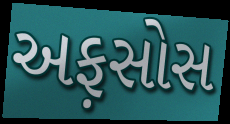
અફ઼સોસ